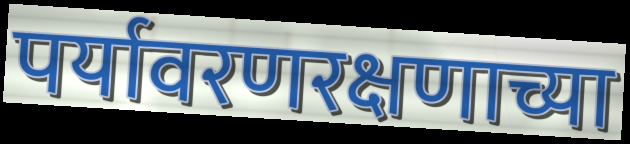
पर्यावरणरक्षणाच्या